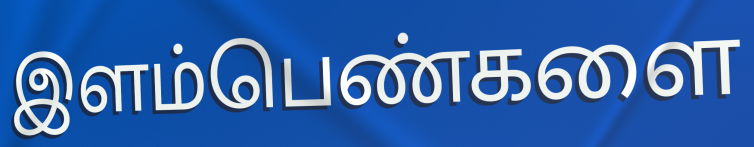
இளம்பெண்களை